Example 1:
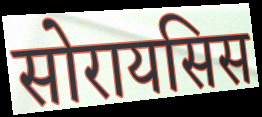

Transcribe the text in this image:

सोरायसिस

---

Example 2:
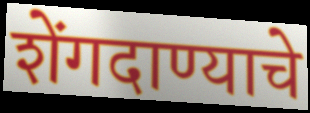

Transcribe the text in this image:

शेंगदाण्याचे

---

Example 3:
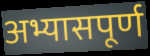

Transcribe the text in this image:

अभ्यासपूर्ण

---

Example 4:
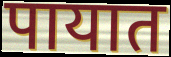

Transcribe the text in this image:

पायात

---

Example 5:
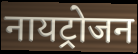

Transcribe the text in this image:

नायट्रोजन